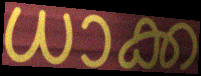
ധാക്ക